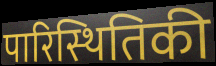
पारिस्थितिकी